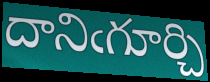
దానిఁగూర్చి